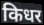
किधर